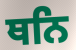
ਥਨਿ